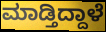
ಮಾಡ್ತಿದ್ದಾಳೆ